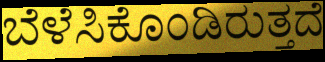
ಬೆಳೆಸಿಕೊಂಡಿರುತ್ತದೆ